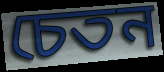
চেতন